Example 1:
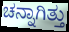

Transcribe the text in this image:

ಚನ್ನಾಗಿತ್ತು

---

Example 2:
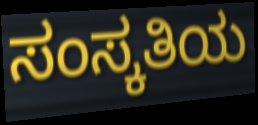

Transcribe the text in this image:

ಸಂಸ್ಕತಿಯ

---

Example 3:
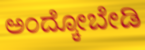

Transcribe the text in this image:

ಅಂದ್ಕೋಬೇಡಿ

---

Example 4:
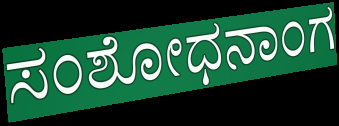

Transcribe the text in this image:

ಸಂಶೋಧನಾಂಗ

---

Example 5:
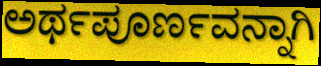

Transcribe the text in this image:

ಅರ್ಥಪೂರ್ಣವನ್ನಾಗಿ